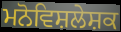
ਮਨੋਵਿਸ਼ਲੇਸ਼ਕ